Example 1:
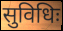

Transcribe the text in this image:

सुविधिः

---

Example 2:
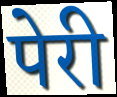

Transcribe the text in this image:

पेरी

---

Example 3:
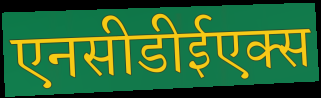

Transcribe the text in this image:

एनसीडीईएक्स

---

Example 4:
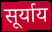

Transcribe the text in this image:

सूर्याय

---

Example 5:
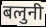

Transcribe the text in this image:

बलुनी